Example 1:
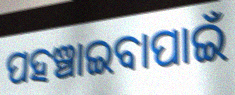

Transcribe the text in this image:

ପହଞ୍ଚାଇବାପାଇଁ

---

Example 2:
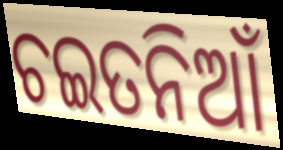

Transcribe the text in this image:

ଚଇତନିଆଁ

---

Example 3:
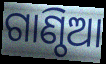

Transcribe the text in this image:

ଗାଣ୍ଠିଆ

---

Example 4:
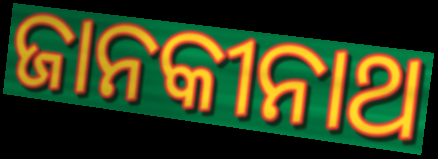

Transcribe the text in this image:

ଜାନକୀନାଥ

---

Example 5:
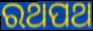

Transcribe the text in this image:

ରଥପଥ